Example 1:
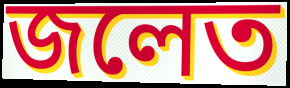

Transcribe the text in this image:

জলেত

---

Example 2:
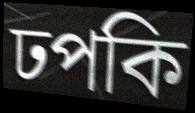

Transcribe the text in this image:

ঢপকি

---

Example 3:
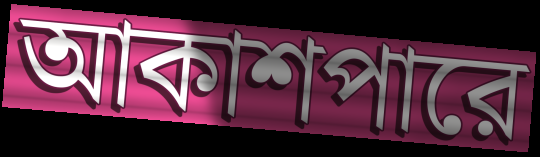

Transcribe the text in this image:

আকাশপারে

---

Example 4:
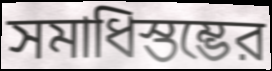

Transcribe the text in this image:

সমাধিস্তম্ভের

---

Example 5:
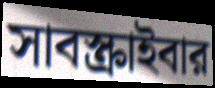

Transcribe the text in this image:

সাবস্ক্রাইবার